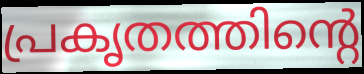
പ്രകൃതത്തിന്റെ